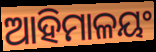
ଆହିମାଳୟଂ